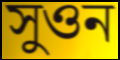
সুওন